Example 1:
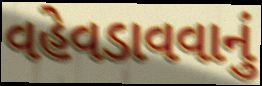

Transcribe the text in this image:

વહેવડાવવાનું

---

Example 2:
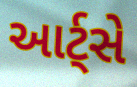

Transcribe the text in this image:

આર્ટ્સે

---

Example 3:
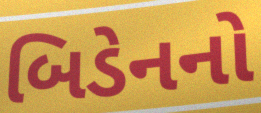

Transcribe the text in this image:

બિડેનનો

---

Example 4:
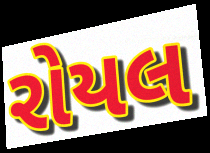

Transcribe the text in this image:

રોયલ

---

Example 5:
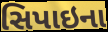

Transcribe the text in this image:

સિપાઇના